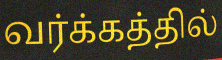
வர்க்கத்தில்